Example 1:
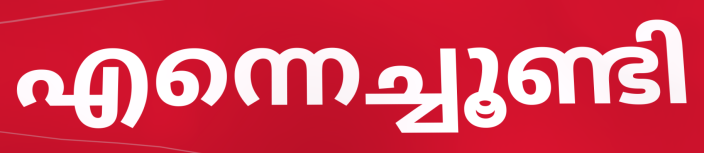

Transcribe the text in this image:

എന്നെച്ചൂണ്ടി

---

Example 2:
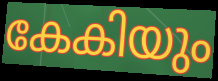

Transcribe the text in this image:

കേകിയും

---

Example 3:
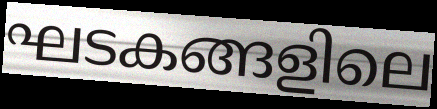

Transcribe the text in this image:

ഘടകങ്ങളിലെ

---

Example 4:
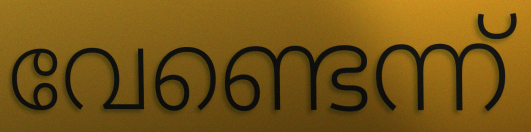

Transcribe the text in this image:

വേണ്ടെന്ന്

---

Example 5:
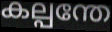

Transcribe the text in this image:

കല്പന്തേ